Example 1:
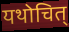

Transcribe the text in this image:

यथोचित्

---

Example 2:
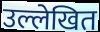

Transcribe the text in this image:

उल्‍लेखित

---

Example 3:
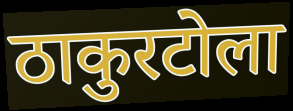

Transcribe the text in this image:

ठाकुरटोला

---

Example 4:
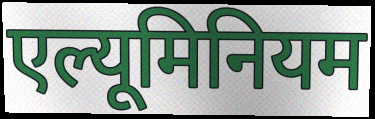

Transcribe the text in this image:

एल्यूमिनियम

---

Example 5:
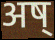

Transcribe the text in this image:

अष्